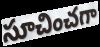
సూచించగా